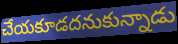
చేయకూడదనుకున్నాడు